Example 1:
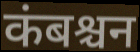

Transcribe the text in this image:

कंबश्चन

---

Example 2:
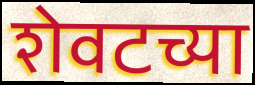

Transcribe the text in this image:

शेवटच्या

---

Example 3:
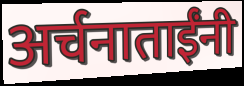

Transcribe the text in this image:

अर्चनाताईंनी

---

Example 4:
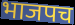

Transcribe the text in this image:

भाजपच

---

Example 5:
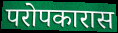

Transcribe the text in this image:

परोपकारास